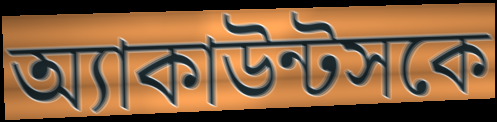
অ্যাকাউন্টসকে